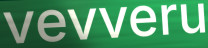
vevveru